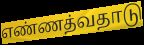
எண்ணத்வதாடு